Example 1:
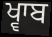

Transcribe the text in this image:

ਖ੍ਵਾਬ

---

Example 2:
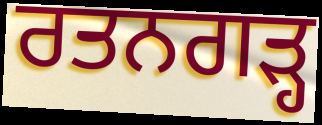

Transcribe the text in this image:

ਰਤਨਗੜ੍ਹ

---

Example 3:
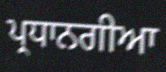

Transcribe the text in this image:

ਪ੍ਰਧਾਨਗੀਆ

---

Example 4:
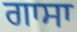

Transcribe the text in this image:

ਗਾਸਾ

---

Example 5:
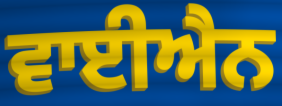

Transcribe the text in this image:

ਵਾਈਐਨ